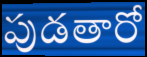
పుడతారో